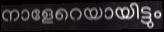
നാളേറെയായിട്ടും